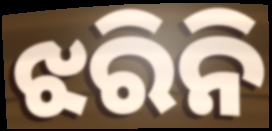
ଝରିନି